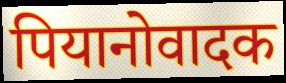
पियानोवादक